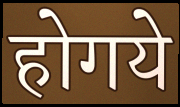
होगये